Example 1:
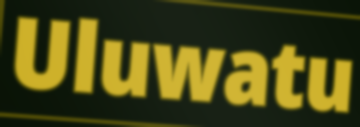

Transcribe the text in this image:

Uluwatu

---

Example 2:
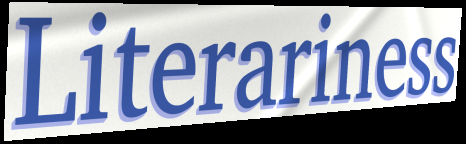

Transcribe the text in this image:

Literariness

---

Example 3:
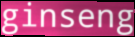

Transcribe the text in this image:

ginseng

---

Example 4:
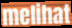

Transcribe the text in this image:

melihat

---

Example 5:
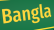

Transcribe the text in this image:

Bangla